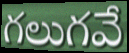
గలుగవే